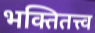
भक्तितत्त्व